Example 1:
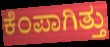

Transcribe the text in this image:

ಕೆಂಪಾಗಿತ್ತು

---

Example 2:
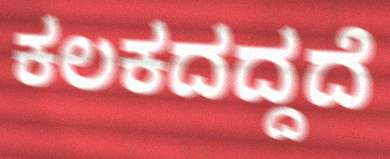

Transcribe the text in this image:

ಕಲಕದದ್ದದೆ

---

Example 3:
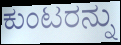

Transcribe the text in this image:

ಕುಂಟರನ್ನು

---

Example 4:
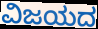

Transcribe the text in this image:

ವಿಜಯದ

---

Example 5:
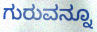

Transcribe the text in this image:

ಗುರುವನ್ನೂ